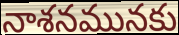
నాశనమునకు